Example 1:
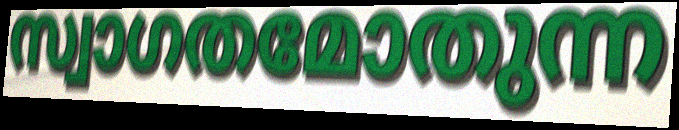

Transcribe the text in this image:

സ്വാഗതമോതുന്ന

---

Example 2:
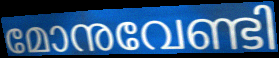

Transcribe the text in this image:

മോനുവേണ്ടി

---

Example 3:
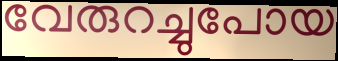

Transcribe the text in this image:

വേരുറച്ചുപോയ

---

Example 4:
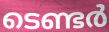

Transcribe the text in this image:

ടെണ്ടർ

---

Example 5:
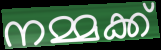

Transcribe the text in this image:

നമ്മക്ക്